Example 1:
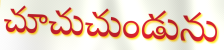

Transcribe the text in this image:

చూచుచుండును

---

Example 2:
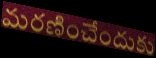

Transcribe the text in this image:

మరణించేందుకు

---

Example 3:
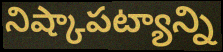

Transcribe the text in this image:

నిష్కాపట్యాన్ని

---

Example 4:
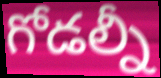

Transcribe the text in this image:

గోడల్నీ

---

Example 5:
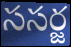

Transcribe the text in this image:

ససర్జ